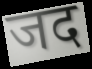
जद